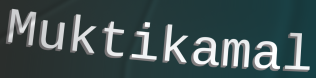
Muktikamal